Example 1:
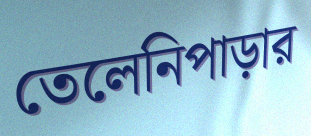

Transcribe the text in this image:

তেলেনিপাড়ার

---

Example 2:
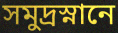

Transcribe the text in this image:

সমুদ্রস্নানে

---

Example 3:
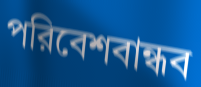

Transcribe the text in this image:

পরিবেশবান্ধব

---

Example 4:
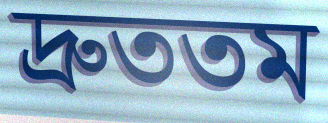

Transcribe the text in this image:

দ্রুততম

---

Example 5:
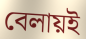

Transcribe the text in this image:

বেলায়ই